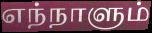
எந்நாளும்